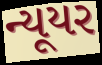
ન્યૂયર